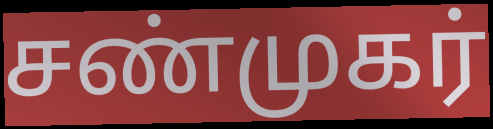
சண்முகர்